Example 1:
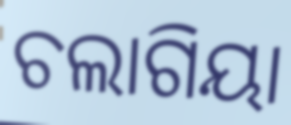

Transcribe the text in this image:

ଚଲାଗିୟା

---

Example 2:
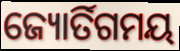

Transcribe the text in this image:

ଜ୍ୟୋର୍ତିଗମୟ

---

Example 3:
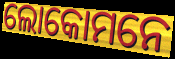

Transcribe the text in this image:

ଲୋକୋମନେ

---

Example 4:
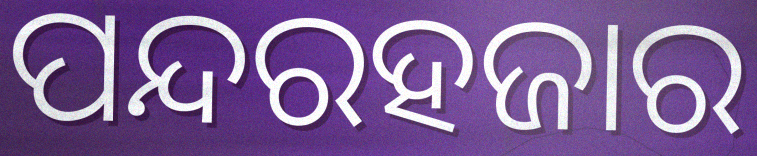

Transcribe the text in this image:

ପନ୍ଦରହଜାର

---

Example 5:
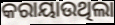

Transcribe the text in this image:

କରାୟାଉଥିଲା